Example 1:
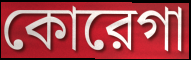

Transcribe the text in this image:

কোরেগা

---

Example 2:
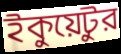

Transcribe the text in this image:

ইকুয়েটুর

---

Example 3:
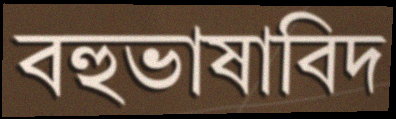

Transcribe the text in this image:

বহুভাষাবিদ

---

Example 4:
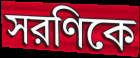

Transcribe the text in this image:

সরণিকে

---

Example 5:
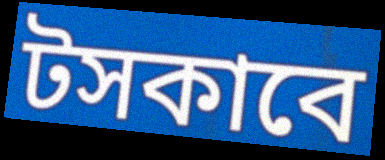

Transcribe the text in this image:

টসকাবে